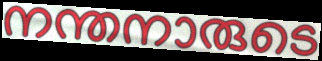
നന്തനാരുടെ